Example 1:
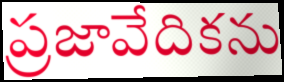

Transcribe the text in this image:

ప్రజావేదికను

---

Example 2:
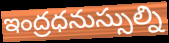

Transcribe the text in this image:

ఇంద్రధనుస్సుల్ని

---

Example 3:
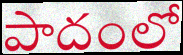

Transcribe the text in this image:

పాదంలో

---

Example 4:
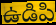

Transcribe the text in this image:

ఉడిపి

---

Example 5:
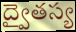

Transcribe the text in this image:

ద్వైతస్య